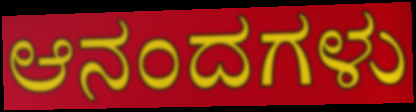
ಆನಂದಗಳು